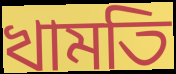
খামতি